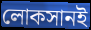
লোকসানই